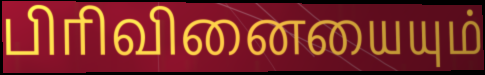
பிரிவினையையும்